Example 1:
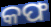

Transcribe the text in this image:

କଫ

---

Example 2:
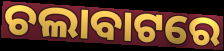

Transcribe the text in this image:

ଚଲାବାଟରେ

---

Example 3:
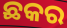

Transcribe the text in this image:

ଛକର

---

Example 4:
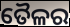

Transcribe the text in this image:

ତୈଳର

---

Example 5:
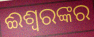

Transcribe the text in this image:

ଈଶ୍ୱରଙ୍କର